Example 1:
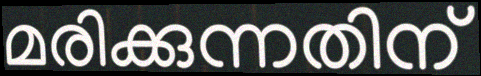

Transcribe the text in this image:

മരിക്കുന്നതിന്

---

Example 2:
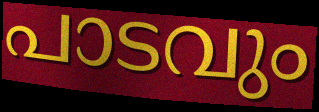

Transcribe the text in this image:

പാടവും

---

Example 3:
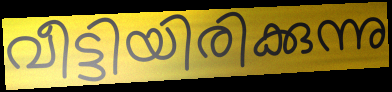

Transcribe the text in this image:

വീട്ടിയിരിക്കുന്നു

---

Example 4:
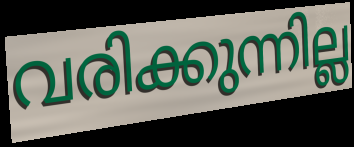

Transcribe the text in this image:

വരിക്കുന്നില്ല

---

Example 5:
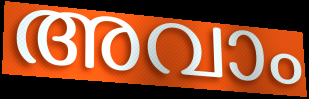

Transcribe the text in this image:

അവാം